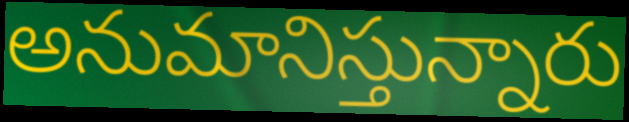
అనుమానిస్తున్నారు